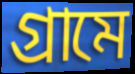
গ্রামে